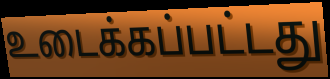
உடைக்கப்பட்டது